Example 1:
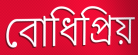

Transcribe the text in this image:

বোধিপ্রিয়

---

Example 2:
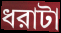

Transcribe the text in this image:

ধরাটা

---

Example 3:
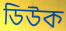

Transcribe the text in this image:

ডিউক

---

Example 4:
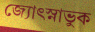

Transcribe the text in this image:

জ্যোৎস্নাভুক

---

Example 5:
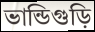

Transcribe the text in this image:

ভান্ডিগুড়ি